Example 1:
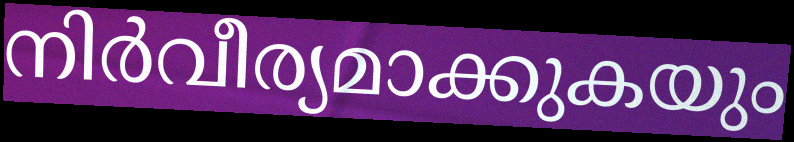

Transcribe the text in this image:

നിർവീര്യമാക്കുകയും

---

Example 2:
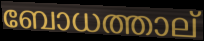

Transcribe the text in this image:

ബോധത്താല്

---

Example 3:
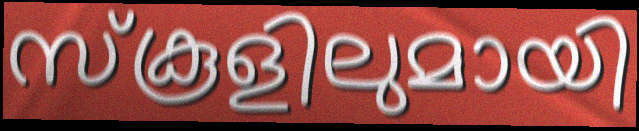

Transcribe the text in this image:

സ്കൂളിലുമായി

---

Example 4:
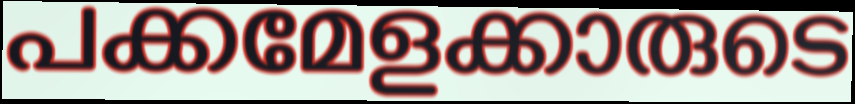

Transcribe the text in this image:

പക്കമേളക്കാരുടെ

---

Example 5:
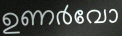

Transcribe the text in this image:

ഉണർവോ